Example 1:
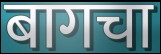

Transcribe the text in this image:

बागचा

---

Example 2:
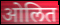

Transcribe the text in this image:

ओलित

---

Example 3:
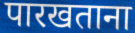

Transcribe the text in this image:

पारखताना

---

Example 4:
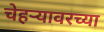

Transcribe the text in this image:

चेहर्‍यावरच्या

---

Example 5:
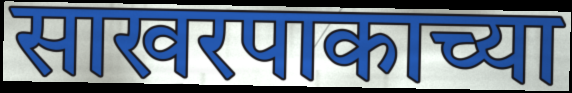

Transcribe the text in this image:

साखरपाकाच्या